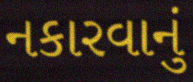
નકારવાનું